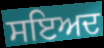
ਸਇਅਦ